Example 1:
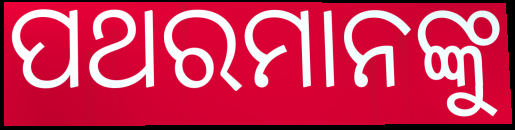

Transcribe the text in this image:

ପଥରମାନଙ୍କୁ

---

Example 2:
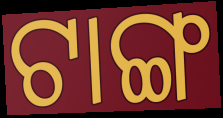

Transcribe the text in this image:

ଟାଙ୍ଗ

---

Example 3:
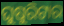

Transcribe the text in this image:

ଘୁଷୁରିଟାର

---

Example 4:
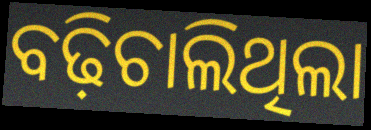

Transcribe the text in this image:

ବଢ଼ିଚାଲିଥିଲା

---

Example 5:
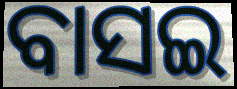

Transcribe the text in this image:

ବାସଇ